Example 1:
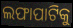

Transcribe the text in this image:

ଲଫାପାଟିକୁ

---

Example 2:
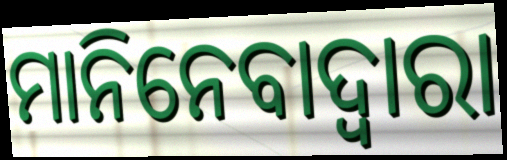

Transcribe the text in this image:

ମାନିନେବାଦ୍ୱାରା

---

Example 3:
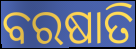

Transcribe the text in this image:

ବରଷାତି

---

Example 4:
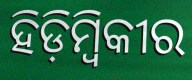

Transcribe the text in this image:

ହିଡ଼ିମ୍ବିକୀର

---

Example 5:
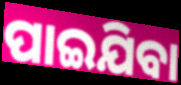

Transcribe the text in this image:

ପାଇଯିବା